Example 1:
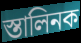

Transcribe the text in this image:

স্তালিনক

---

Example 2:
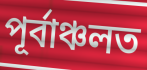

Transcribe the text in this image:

পূৰ্বাঞ্চলত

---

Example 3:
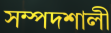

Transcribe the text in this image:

সম্পদশালী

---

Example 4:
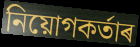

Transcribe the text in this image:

নিয়োগকৰ্তাৰ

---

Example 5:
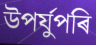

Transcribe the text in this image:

উপৰ্যুপৰি